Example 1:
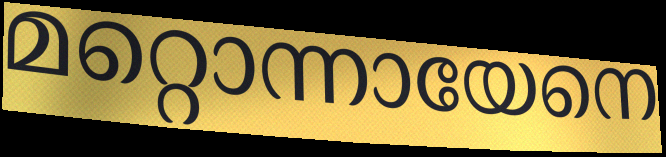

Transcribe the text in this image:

മറ്റൊന്നായേനെ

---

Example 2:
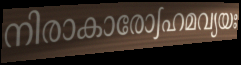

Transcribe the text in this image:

നിരാകാരോഽഹമവ്യയഃ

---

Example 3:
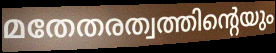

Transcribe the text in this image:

മതേതരത്വത്തിന്റെയും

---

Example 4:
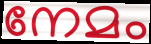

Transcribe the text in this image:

നേമം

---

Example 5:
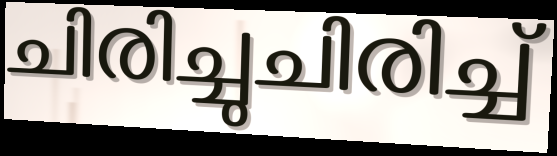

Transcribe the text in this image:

ചിരിച്ചുചിരിച്ച്